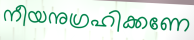
നീയനുഗ്രഹിക്കണേ